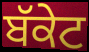
ਬੱਕੇਟ